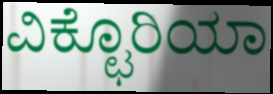
ವಿಕ್ಟೊರಿಯಾ